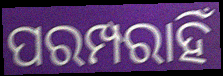
ପରମ୍ପରାହିଁ